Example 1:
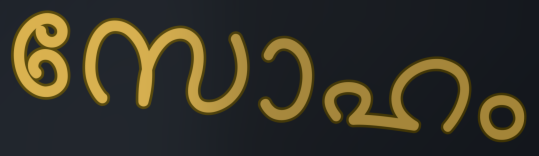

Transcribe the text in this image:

സോഹം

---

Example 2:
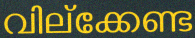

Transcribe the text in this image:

വില്ക്കേണ്ട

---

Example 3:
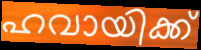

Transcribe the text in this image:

ഹവായിക്ക്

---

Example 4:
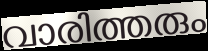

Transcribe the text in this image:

വാരിത്തരും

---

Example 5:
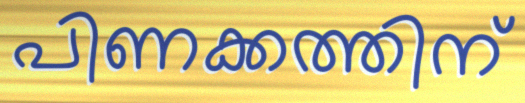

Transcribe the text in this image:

പിണക്കത്തിന്